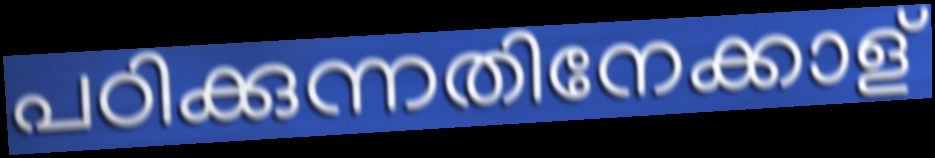
പഠിക്കുന്നതിനേക്കാള്